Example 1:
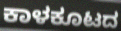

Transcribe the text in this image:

ಕಾಳಕೂಟದ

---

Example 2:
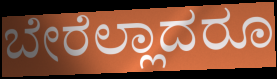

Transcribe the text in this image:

ಬೇರೆಲ್ಲಾದರೂ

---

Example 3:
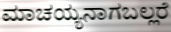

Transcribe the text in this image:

ಮಾಚಯ್ಯನಾಗಬಲ್ಲರೆ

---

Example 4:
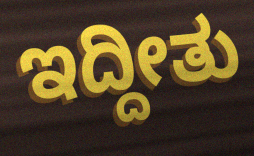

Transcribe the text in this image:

ಇದ್ದೀತು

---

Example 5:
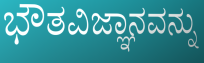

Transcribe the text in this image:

ಭೌತವಿಜ್ಞಾನವನ್ನು